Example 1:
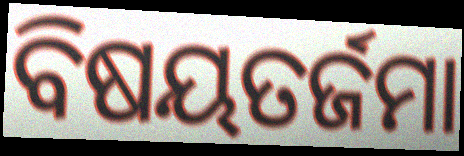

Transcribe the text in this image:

ବିଷୟତର୍ଜମା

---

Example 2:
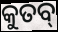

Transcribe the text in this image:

କୁତବ୍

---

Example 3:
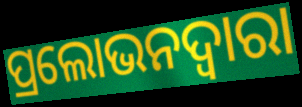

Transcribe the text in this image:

ପ୍ରଲୋଭନଦ୍ୱାରା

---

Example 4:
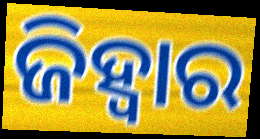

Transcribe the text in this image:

ଜିହ୍ଵାର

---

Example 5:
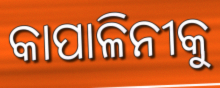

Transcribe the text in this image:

କାପାଳିନୀକୁ